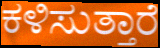
ಕಳಿಸುತ್ತಾರೆ